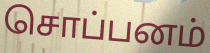
சொப்பனம்